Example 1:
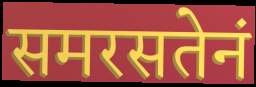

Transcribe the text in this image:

समरसतेनं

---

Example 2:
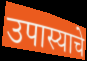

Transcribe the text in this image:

उपास्याचे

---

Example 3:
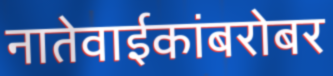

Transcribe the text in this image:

नातेवाईकांबरोबर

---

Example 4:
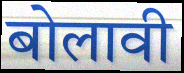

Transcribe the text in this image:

बोलावी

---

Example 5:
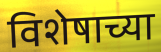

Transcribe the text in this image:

विशेषाच्या